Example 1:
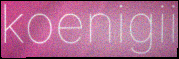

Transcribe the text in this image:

koenigii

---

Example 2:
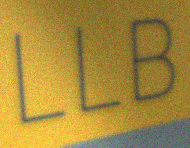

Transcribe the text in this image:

LLB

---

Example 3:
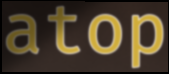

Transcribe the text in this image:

atop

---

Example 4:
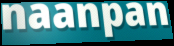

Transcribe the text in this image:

naanpan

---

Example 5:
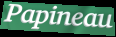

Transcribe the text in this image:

Papineau